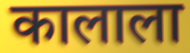
कालाला